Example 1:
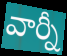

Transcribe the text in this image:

వార్నీ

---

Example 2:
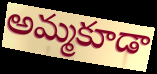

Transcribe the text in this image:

అమ్మకూడా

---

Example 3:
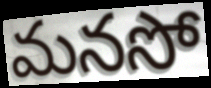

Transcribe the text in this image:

మనసో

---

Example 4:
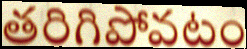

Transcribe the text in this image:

తరిగిపోవటం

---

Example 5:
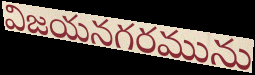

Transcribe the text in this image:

విజయనగరమును